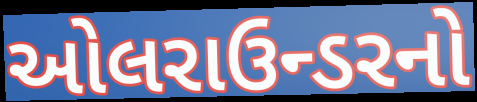
ઓલરાઉન્ડરનો